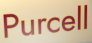
Purcell